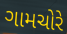
ગામચોરે